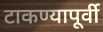
टाकण्यापूर्वी